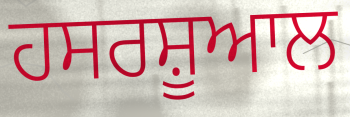
ਹਸਰਸ਼ੂਆਲ